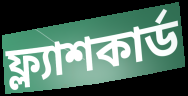
ফ্ল্যাশকার্ড